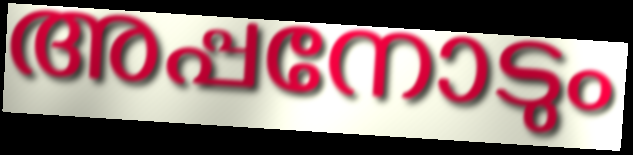
അപ്പനോടും